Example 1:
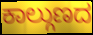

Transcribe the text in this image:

ಕಾಲ್ಗುಣದ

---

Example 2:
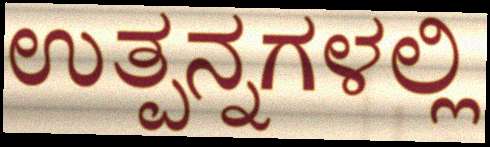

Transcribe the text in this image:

ಉತ್ಪನ್ನಗಳಲ್ಲಿ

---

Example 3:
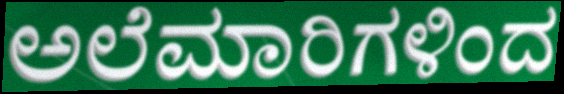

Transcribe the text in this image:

ಅಲೆಮಾರಿಗಳಿಂದ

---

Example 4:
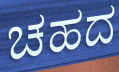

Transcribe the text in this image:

ಚಹದ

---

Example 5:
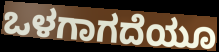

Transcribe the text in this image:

ಒಳಗಾಗದೆಯೂ